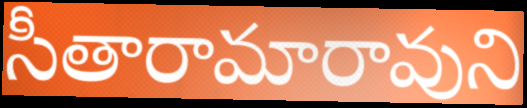
సీతారామారావుని